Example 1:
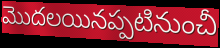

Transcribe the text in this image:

మొదలయినప్పటినుంచీ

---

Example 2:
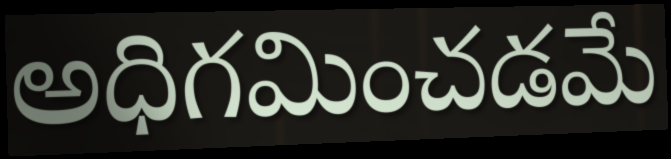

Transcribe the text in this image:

అధిగమించడమే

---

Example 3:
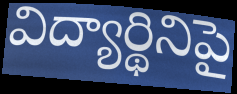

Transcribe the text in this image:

విద్యార్థినిపై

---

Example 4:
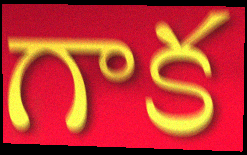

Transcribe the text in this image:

గాక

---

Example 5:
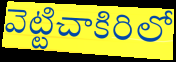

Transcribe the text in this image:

వెట్టిచాకిరిలో